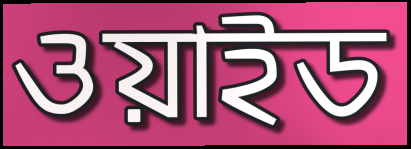
ওয়াইড